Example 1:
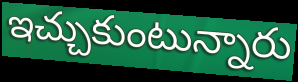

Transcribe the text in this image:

ఇచ్చుకుంటున్నారు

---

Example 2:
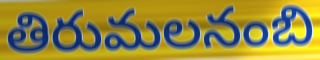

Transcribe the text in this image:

తిరుమలనంబి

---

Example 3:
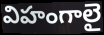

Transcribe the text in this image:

విహంగాలై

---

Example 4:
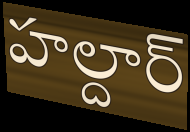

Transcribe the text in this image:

హల్దార్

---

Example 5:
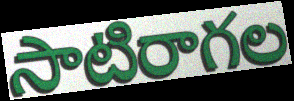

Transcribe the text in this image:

సాటిరాగల